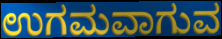
ಉಗಮವಾಗುವ